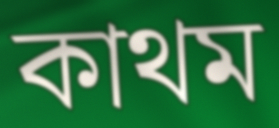
কাথম